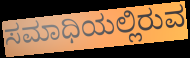
ಸಮಾಧಿಯಲ್ಲಿರುವ